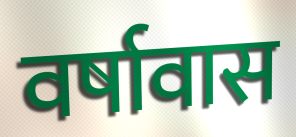
वर्षावास